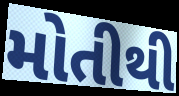
મોતીથી